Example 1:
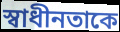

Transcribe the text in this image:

স্বাধীনতাকে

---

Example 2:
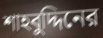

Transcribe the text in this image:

শাহবুদ্দিনের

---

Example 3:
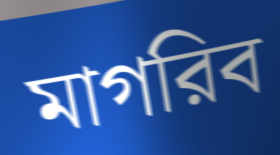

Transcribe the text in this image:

মাগরিব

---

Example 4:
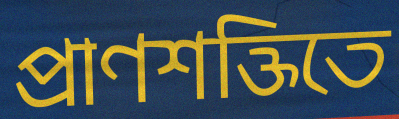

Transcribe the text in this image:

প্রাণশক্তিতে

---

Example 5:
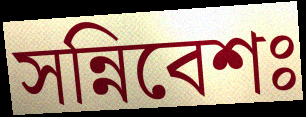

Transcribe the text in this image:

সন্নিবেশঃ